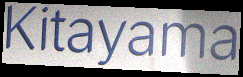
Kitayama